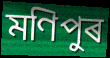
মণিপুৰ